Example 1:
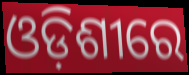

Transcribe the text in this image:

ଓଡ଼ିଶୀରେ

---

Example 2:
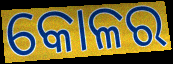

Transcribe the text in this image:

କୋଳର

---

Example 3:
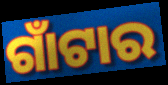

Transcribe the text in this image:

ଗାଁଟାର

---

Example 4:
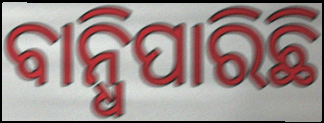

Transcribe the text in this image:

ବାନ୍ଧିପାରିଛି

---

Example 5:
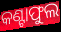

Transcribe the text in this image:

କଣ୍ଟାଫୁଲ